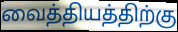
வைத்தியத்திற்கு